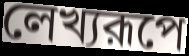
লেখ্যরূপে